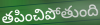
తపించిపోతుంది